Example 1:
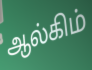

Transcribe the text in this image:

ஆல்கிம்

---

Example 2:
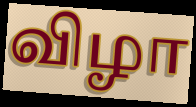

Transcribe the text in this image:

விழா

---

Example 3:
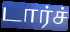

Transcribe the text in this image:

டார்ச்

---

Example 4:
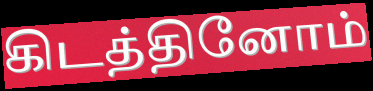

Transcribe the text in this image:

கிடத்தினோம்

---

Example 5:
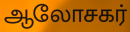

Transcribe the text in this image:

ஆலோசகர்